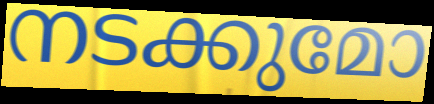
നടക്കുമോ